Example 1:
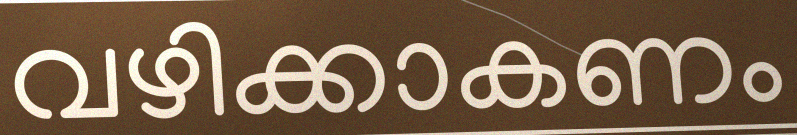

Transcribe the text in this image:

വഴിക്കാകണം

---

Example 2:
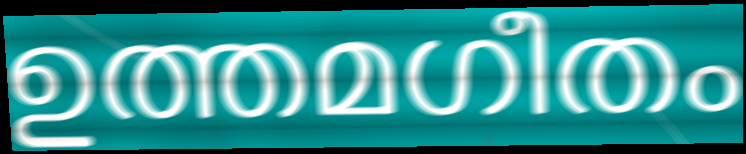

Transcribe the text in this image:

ഉത്തമഗീതം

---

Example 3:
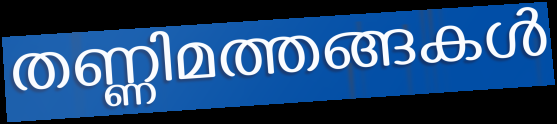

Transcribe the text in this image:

തണ്ണിമത്തങ്ങകൾ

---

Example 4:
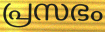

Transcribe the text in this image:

പ്രസഭം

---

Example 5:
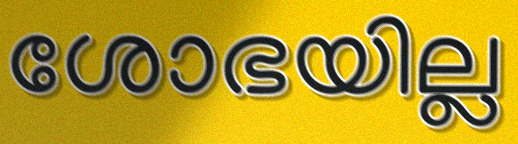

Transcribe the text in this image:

ശോഭയില്ല